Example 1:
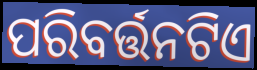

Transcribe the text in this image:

ପରିବର୍ତ୍ତନଟିଏ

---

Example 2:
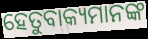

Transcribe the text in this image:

ହେତୁବାକ୍ୟମାନଙ୍କ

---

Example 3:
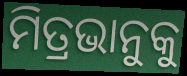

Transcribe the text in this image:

ମିତ୍ରଭାନୁକୁ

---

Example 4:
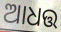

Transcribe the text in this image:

ଆଧତ୍ତ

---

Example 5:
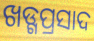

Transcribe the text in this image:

ଖଡ୍ଗପ୍ରସାଦ